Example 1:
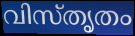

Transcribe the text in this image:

വിസ്തൃതം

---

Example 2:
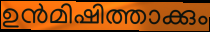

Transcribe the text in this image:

ഉൻമിഷിത്താക്കും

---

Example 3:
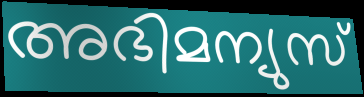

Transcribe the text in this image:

അഭിമന്യുസ്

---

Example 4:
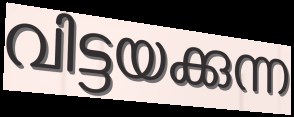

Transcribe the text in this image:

വിട്ടയക്കുന്ന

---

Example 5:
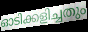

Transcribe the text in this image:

ഓടിക്കളിച്ചതും